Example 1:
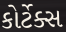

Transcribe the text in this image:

કોર્ટેક્સ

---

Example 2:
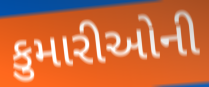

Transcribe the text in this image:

કુમારીઓની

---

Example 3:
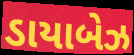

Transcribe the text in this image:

ડાયાબેઝ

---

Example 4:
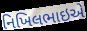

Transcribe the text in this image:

નિખિલભાઇએ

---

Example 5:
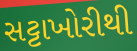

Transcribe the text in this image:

સટ્ટાખોરીથી